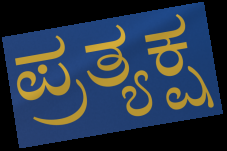
ಪ್ರತ್ಯಕ್ಷ